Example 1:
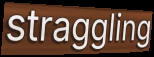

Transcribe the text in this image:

straggling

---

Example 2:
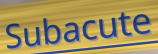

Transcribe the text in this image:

Subacute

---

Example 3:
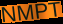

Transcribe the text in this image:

NMPT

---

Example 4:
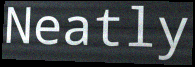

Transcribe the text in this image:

Neatly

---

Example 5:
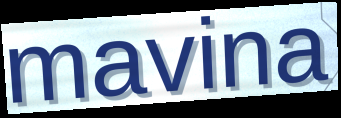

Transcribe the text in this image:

mavina